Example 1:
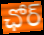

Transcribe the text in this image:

ఛోర్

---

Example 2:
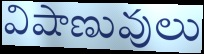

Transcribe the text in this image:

విషాణువులు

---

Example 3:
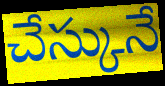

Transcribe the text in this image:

చేస్కునే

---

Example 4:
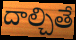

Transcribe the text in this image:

దాల్చితే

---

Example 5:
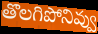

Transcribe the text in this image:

తొలగిపోనివ్వు